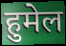
हुमेल